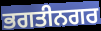
ਭਗਤੀਨਗਰ